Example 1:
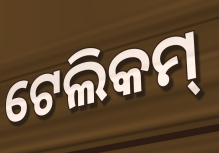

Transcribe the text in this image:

ଟେଲିକମ୍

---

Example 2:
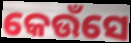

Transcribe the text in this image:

କେଉଁସେ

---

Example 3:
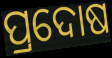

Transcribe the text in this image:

ପ୍ରଦୋଷ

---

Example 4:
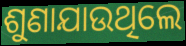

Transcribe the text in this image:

ଶୁଣାଯାଉଥିଲେ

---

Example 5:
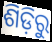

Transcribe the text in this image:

ଶିଡ଼ିରୁ